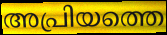
അപ്രിയത്തെ